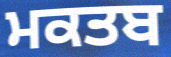
ਮਕਤਬ